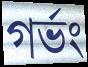
গর্ভং